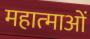
महात्‍माओं